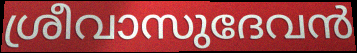
ശ്രീവാസുദേവൻ